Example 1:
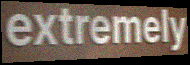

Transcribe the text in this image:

extremely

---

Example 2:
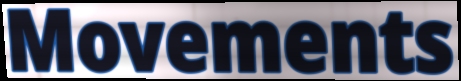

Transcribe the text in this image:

Movements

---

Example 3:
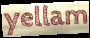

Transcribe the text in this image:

yellam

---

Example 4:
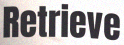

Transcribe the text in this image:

Retrieve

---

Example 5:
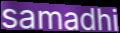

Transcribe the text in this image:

samadhi